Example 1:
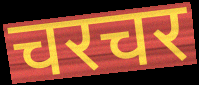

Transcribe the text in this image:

चरचर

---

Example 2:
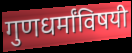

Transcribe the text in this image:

गुणधर्मांविषयी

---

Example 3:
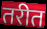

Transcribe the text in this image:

तरीत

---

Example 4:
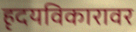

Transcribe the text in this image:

हृदयविकारावर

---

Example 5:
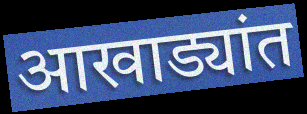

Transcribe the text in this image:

आखाड्यांत